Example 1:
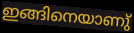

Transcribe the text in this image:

ഇങ്ങിനെയാണു്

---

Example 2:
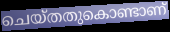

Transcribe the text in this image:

ചെയ്തതുകൊണ്ടാണ്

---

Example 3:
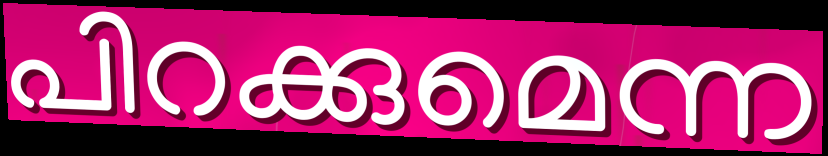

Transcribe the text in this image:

പിറക്കുമെന്ന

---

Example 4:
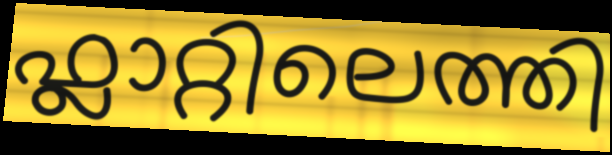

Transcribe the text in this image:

ഫ്ലാറ്റിലെത്തി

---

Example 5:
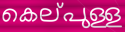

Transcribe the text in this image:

കെല്‌പുള്ള